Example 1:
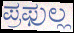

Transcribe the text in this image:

ಪ್ರಫುಲ್ಲ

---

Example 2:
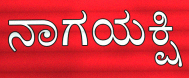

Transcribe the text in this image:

ನಾಗಯಕ್ಷಿ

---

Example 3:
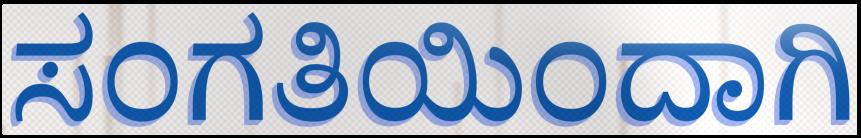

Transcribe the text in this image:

ಸಂಗತಿಯಿಂದಾಗಿ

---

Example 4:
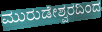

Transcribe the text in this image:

ಮುರುಡೇಶ್ವರದಿಂದ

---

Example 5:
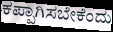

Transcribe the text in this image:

ಕಪ್ಪಾಗಿಸಬೇಕೆಂದು